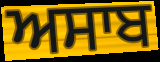
ਅਸਾਬ